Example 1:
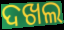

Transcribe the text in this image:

ଦଖଲ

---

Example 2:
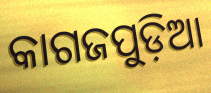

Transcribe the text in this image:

କାଗଜପୁଡ଼ିଆ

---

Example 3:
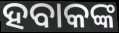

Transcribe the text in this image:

ହବାକଙ୍କ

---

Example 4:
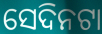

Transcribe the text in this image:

ସେଦିନଟା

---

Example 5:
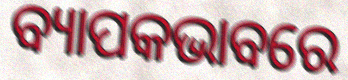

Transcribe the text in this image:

ବ୍ୟାପକଭାବରେ